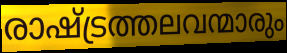
രാഷ്ട്രത്തലവന്മാരും